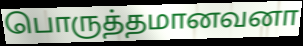
பொருத்தமானவனா